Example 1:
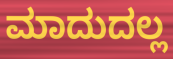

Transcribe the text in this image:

ಮಾದುದಲ್ಲ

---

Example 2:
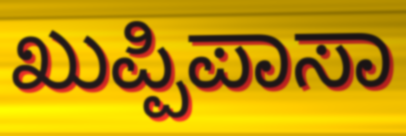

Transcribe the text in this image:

ಖುಪ್ಪಿಪಾಸಾ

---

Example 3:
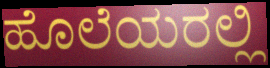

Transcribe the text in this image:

ಹೊಲೆಯರಲ್ಲಿ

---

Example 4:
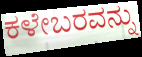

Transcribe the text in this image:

ಕಳೇಬರವನ್ನು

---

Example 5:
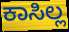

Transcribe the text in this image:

ಕಾಸಿಲ್ಲ